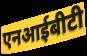
एनआईबीटी